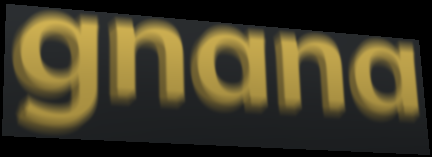
gnana